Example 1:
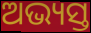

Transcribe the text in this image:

ଅଭ୍ୟସ୍ତ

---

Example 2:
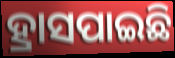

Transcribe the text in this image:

ହ୍ରାସପାଇଛି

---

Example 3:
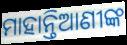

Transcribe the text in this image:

ମାହାନ୍ତିଆଣୀଙ୍କ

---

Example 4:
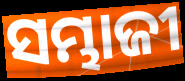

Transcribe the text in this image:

ସମ୍ଭାଜୀ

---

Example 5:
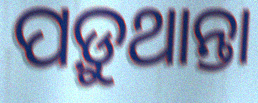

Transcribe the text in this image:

ପଡ଼ୁଥାନ୍ତା